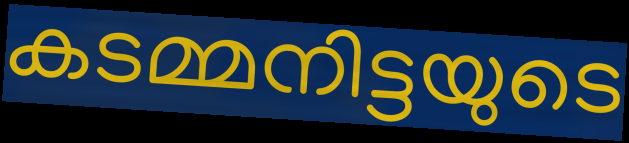
കടമ്മനിട്ടയുടെ